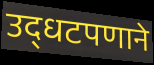
उद्धटपणाने